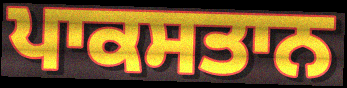
ਪਾਕਸਤਾਨ